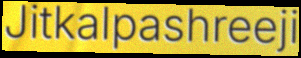
Jitkalpashreeji